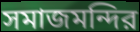
সমাজমন্দির